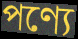
পণ্যে